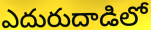
ఎదురుదాడిలో